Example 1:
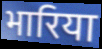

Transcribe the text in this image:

भारिया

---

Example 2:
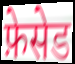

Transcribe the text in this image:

फ़ेसेड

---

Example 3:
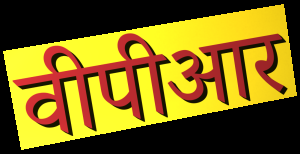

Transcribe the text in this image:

वीपीआर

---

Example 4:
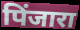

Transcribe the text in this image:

पिंजारा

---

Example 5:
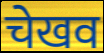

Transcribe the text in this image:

चेखव